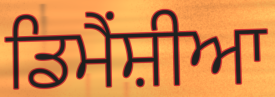
ਡਿਮੈਂਸ਼ੀਆ